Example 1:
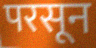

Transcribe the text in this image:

परसून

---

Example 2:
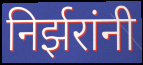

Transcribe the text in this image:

निर्झरांनी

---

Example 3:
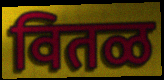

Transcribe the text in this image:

वितळ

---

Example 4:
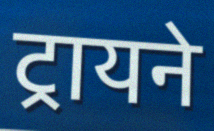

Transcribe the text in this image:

ट्रायने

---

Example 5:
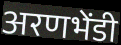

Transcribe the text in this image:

अरणभेंडी